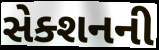
સેક્શનની